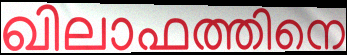
ഖിലാഫത്തിനെ